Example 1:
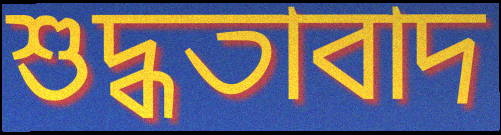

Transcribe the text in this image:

শুদ্ধতাবাদ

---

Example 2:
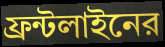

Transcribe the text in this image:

ফ্রন্টলাইনের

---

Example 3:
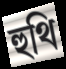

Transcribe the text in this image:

হুথি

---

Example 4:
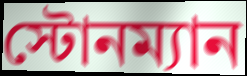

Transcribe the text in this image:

স্টোনম্যান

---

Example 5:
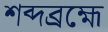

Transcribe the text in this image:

শব্দব্রহ্মে